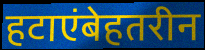
हटाएंबेहतरीन